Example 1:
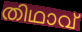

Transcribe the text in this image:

തിഥാവ്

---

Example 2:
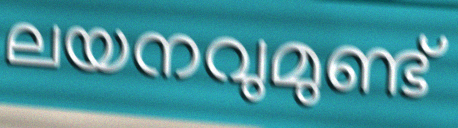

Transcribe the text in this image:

ലയനവുമുണ്ട്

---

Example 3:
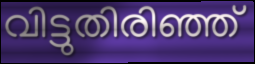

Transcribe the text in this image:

വിട്ടുതിരിഞ്ഞ്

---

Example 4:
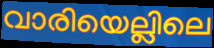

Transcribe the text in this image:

വാരിയെല്ലിലെ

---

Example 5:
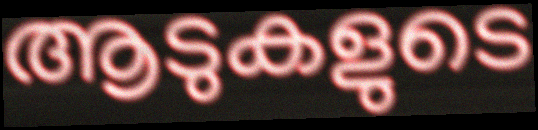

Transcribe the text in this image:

ആടുകളുടെ